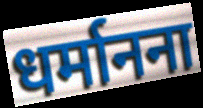
धर्मानना